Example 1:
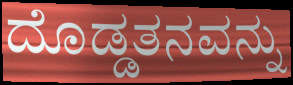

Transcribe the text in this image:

ದೊಡ್ಡತನವನ್ನು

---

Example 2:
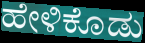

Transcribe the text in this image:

ಹೇಳಿಕೊಡು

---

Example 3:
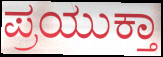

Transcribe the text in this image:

ಪ್ರಯುಕ್ತಾ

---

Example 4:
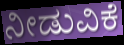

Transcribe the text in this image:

ನೀಡುವಿಕೆ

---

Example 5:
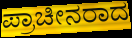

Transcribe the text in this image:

ಪ್ರಾಚೀನರಾದ